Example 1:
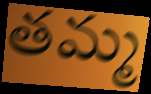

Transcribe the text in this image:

తమ్మ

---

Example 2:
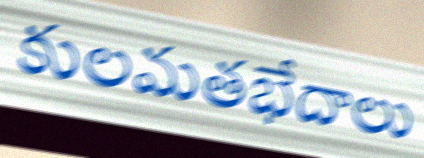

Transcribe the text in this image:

కులమతభేదాలు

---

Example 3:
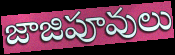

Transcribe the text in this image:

జాజిపూవులు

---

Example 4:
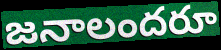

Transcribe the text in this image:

జనాలందరూ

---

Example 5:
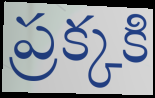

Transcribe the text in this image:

ప్రక్కకి